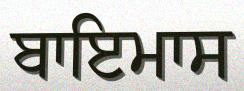
ਬਾਇਮਾਸ